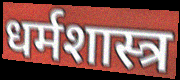
धर्मशास्त्र